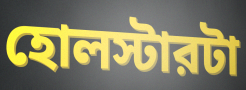
হোলস্টারটা